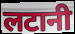
लटानी